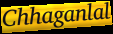
Chhaganlal